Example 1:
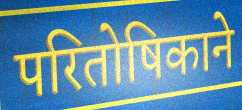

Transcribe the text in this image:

परितोषिकाने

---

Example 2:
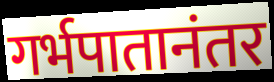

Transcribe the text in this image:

गर्भपातानंतर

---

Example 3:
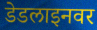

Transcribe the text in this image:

डेडलाइनवर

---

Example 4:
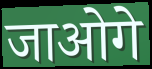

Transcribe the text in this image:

जाओगे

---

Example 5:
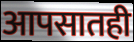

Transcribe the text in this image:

आपसातही